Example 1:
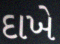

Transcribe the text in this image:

દાખે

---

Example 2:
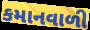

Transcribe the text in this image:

કમાનવાળી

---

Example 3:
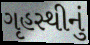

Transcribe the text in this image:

ગૃહસ્થીનું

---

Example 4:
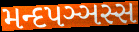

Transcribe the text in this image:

મન્દપઞ્ઞસ્સ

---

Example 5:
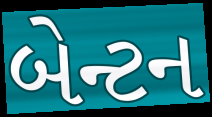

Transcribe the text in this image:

બેન્ટન